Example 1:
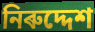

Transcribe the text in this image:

নিৰুদ্দেশ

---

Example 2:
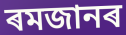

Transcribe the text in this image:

ৰমজানৰ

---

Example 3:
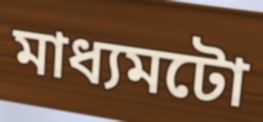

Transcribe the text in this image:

মাধ্যমটো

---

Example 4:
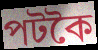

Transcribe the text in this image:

পটকৈ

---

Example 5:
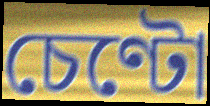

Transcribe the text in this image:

চেণ্টো